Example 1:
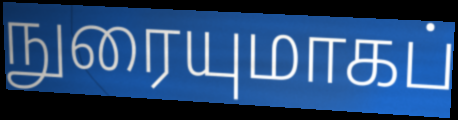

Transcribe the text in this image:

நுரையுமாகப்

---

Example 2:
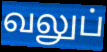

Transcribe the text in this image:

வலுப்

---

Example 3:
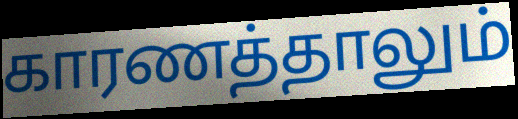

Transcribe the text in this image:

காரணத்தாலும்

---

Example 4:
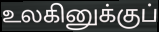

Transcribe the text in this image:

உலகினுக்குப்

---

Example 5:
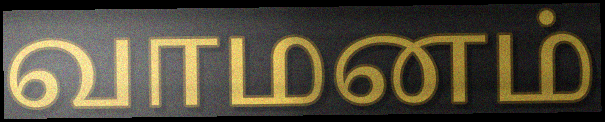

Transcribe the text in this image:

வாமனம்